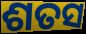
ଶତସ